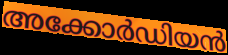
അക്കോർഡിയൻ